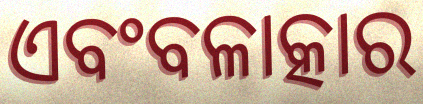
ଏବଂବଳାତ୍କାର